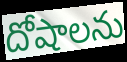
దోషాలను